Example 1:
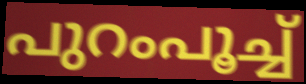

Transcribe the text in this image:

പുറംപൂച്ച്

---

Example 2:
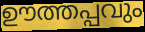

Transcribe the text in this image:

ഊത്തപ്പവും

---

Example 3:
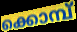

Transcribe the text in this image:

ക്കൊമ്പ്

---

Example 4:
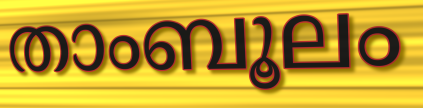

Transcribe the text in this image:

താംബൂലം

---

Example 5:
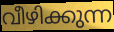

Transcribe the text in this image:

വീഴിക്കുന്ന